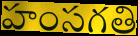
హంసగతి